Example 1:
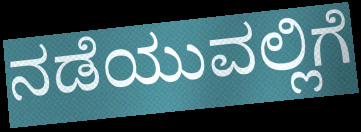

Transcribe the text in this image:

ನಡೆಯುವಲ್ಲಿಗೆ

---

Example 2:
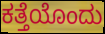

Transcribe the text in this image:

ಕತ್ತೆಯೊಂದು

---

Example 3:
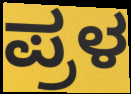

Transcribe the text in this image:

ಪ್ರಳ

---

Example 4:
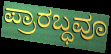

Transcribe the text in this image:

ಪ್ರಾರಬ್ಧವೂ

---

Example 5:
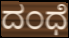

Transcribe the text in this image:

ದಂಧೆ